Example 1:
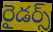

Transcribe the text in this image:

రైడర్స్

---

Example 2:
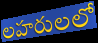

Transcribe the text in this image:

లహరులలో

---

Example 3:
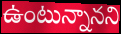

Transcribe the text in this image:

ఉంటున్నానని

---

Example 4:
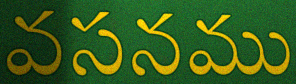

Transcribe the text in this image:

వసనము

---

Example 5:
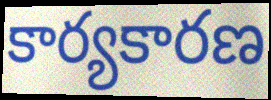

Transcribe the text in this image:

కార్యకారణ